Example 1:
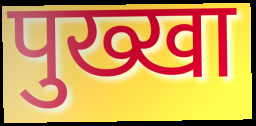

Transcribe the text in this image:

पुख्खा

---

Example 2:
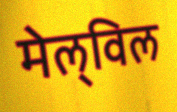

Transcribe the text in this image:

मेल्विल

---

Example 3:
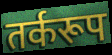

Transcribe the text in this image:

तर्करूप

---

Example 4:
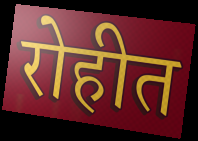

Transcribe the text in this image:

रोहीत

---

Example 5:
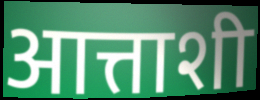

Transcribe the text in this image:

आत्ताशी